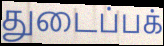
துடைப்பக்